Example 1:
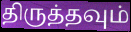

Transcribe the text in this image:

திருத்தவும்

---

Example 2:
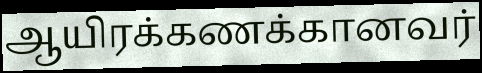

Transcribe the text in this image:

ஆயிரக்கணக்கானவர்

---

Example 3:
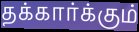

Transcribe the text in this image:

தக்கார்க்கும்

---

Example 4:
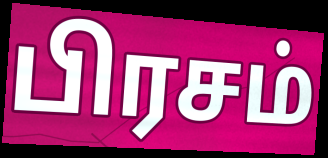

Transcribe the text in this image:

பிரசம்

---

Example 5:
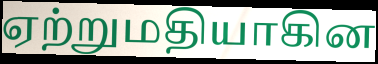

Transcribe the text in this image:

ஏற்றுமதியாகின